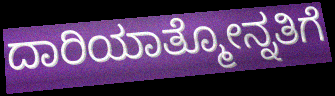
ದಾರಿಯಾತ್ಮೋನ್ನತಿಗೆ